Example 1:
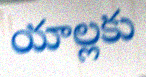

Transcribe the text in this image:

యాల్లకు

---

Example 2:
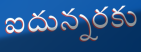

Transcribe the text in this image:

ఐదున్నరకు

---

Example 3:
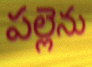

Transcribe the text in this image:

పల్లెను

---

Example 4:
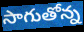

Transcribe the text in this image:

సాగుతోన్న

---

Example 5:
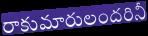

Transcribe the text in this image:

రాకుమారులందరినీ